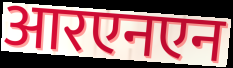
आरएनएन